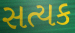
સત્યક